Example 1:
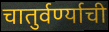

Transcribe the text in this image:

चातुर्वर्ण्याची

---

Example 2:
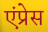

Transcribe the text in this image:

एंप्रेस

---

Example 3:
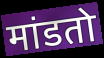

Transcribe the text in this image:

मांडतो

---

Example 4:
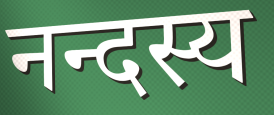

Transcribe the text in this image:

नन्दस्य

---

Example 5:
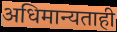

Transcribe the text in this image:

अधिमान्यताही